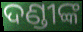
ଦଣ୍ଡୀଙ୍କ